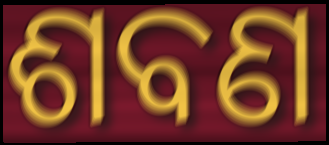
ଶବଣ